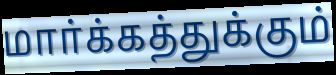
மார்க்கத்துக்கும்